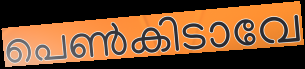
പെൺകിടാവേ